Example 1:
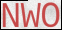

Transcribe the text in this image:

NWO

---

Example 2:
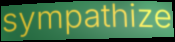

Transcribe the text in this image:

sympathize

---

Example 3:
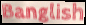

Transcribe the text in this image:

Banglish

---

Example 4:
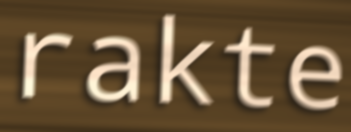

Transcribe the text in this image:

rakte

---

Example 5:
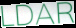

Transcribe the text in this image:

LDAR